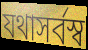
যথাসর্বস্ব